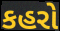
કહરો